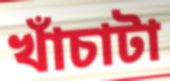
খাঁচাটা